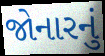
જોનારનું